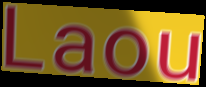
Laou